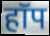
हॉप